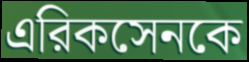
এরিকসেনকে